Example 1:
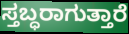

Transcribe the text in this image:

ಸ್ತಬ್ಧರಾಗುತ್ತಾರೆ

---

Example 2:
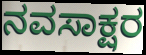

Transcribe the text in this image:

ನವಸಾಕ್ಷರ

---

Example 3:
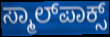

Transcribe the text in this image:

ಸ್ಮಾಲ್‌ಪಾಕ್ಸ್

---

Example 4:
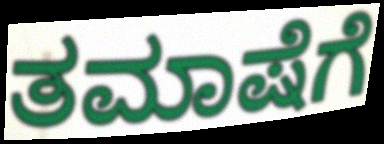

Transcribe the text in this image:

ತಮಾಷೆಗೆ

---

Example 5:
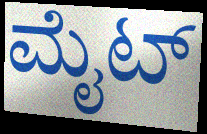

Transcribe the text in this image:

ಮೈಟ್